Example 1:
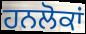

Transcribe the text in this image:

ਹਨਲੋਕਾਂ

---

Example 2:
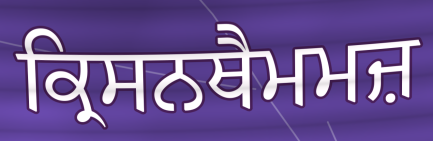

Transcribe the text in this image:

ਕ੍ਰਿਸਨਥੈਮਮਜ਼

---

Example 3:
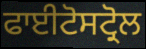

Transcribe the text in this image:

ਫਾਈਟੋਸਟ੍ਰੋਲ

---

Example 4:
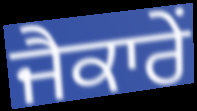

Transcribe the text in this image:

ਜੈਕਾਰੇਂ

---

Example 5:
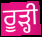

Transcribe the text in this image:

ਰੂੜ੍ਹੀ